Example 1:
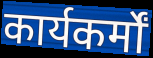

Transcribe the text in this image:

कार्यकर्मों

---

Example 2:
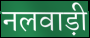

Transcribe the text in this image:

नलवाड़ी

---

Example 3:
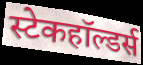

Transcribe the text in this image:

स्टेकहॉल्डर्स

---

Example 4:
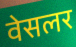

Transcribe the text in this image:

वेसलर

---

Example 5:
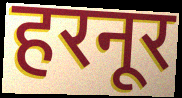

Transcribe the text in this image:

हरनूर